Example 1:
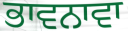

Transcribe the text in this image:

ਭਾਵਨਾਵਾ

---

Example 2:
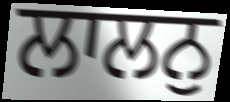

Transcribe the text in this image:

ਲਾਲਨੁ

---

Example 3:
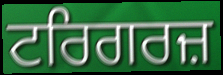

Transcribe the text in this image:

ਟਰਿਗਰਜ਼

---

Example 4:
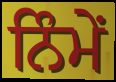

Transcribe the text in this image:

ਨਿੰਮੇਂ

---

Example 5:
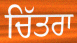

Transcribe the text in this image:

ਚਿੱਤਰਾ